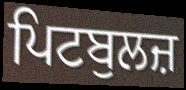
ਪਿਟਬੁਲਜ਼